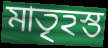
মাতৃহস্ত